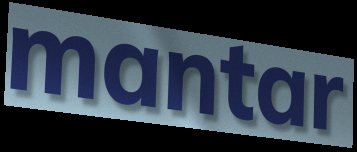
mantar